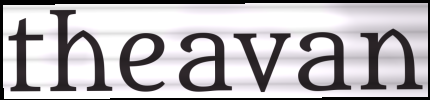
theavan